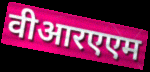
वीआरएएम